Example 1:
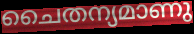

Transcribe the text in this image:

ചൈതന്യമാണു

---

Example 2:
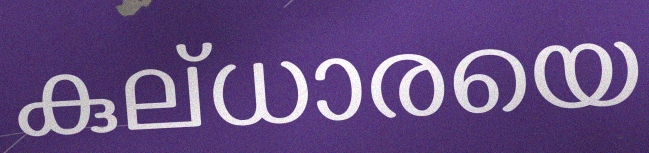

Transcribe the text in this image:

കുല്ധാരയെ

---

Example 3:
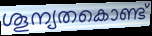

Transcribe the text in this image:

ശൂന്യതകൊണ്ട്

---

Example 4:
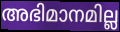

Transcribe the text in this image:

അഭിമാനമില്ല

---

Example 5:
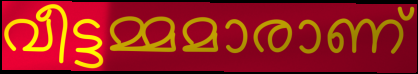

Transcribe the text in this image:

വീട്ടമ്മമാരാണ്